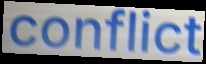
conflict